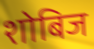
शोबिज